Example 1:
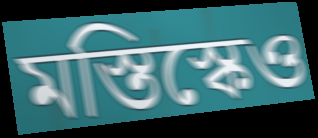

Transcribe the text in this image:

মস্তিস্কেও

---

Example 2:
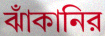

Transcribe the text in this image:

ঝাঁকানির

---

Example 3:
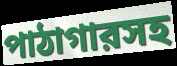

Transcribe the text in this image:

পাঠাগারসহ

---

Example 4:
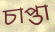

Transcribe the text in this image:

চাপ্তা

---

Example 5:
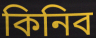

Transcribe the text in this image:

কিনিব